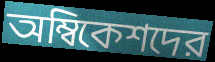
অম্বিকেশদের